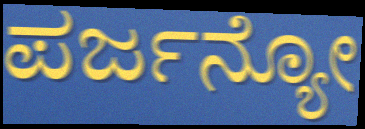
ಪರ್ಜನ್ಯೋ